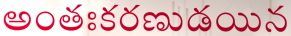
అంతఃకరణుడయిన